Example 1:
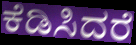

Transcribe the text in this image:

ಕೆಡಿಸಿದರೆ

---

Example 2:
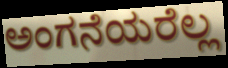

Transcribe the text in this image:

ಅಂಗನೆಯರೆಲ್ಲ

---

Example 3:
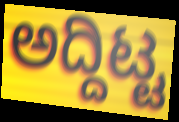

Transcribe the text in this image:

ಅದ್ದಿಟ್ಟ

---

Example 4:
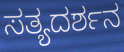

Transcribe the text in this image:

ಸತ್ಯದರ್ಶನ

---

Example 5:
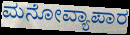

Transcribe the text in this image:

ಮನೋವ್ಯಾಪಾರ